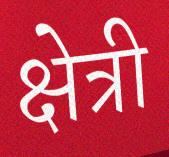
क्षेत्री